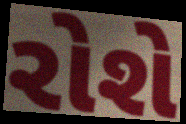
રોશે